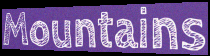
Mountains